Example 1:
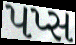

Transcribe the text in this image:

પપ્સ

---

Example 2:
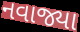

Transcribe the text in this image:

નવાજ્યા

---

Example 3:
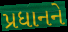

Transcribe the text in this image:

પ્રધાનને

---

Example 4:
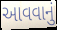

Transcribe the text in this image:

આવવાનું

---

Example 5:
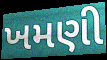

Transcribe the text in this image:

ખમણી